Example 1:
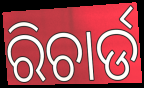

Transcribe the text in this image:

ରିଚାର୍ଡ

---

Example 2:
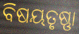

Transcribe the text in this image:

ବିଷୟତୃଷ୍ଣା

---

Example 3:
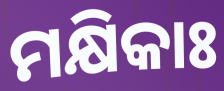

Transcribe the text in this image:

ମକ୍ଷିକାଃ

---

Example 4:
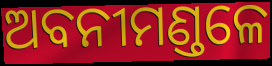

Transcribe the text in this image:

ଅବନୀମଣ୍ଡଳେ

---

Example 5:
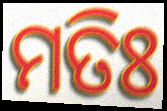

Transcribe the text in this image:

ମତିଃ